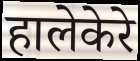
हालेकेरे